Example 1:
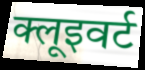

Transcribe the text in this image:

क्लूइवर्ट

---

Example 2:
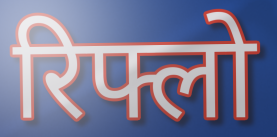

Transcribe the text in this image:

रिफ्लो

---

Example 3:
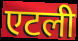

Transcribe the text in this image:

एटली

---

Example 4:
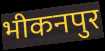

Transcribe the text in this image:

भीकनपुर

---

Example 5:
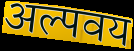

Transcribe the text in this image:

अल्पवय